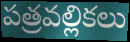
పత్రవల్లికలు